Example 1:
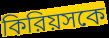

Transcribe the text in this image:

কিরিয়সকে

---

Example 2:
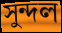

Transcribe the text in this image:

সুন্দল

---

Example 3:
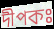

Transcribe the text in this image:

দীপকঃ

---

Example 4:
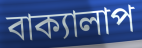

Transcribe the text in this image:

বাক্যালাপ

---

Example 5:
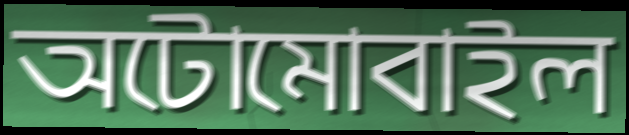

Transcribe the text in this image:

অটোমোবাইল